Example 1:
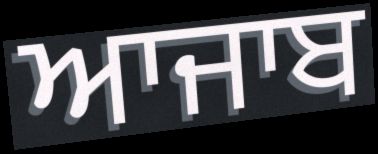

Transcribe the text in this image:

ਆਜਾਬ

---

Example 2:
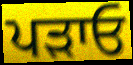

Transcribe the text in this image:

ਪੜਾਓ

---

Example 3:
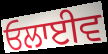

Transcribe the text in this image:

ਓਲਾਈਵ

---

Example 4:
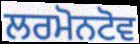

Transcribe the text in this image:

ਲਰਮੋਨਟੋਵ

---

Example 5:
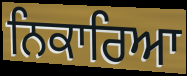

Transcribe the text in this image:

ਨਿਕਾਰਿਆ